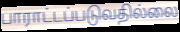
பாராட்டப்படுவதில்லை